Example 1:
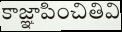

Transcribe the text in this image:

కాజ్ఞాపించితివి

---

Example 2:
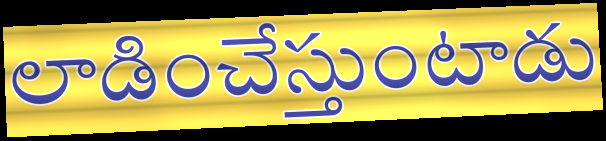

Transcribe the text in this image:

లాడించేస్తుంటాడు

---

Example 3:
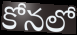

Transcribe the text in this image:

కోనలో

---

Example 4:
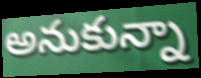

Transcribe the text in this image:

అనుకున్నా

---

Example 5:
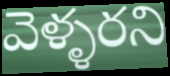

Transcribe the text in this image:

వెళ్ళరని